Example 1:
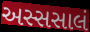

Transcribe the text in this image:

અસ્સસાલં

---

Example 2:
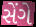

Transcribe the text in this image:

સેંગે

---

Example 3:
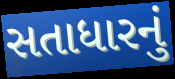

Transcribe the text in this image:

સતાધારનું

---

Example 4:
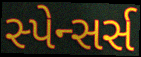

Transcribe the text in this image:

સ્પેન્સર્સ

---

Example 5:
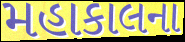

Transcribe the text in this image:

મહાકાલના